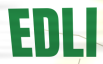
EDLI